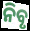
ନିବୃ